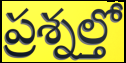
ప్రశ్నల్తో